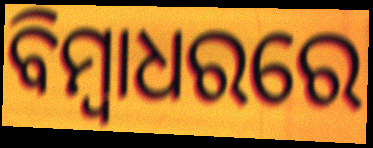
ବିମ୍ୱାଧରରେ